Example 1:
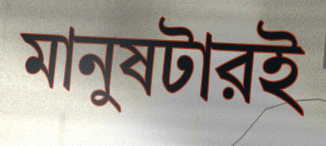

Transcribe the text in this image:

মানুষটারই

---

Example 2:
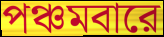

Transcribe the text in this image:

পঞ্চমবারে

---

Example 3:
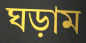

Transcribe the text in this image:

ঘড়াম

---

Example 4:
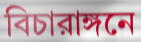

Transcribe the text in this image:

বিচারাঙ্গনে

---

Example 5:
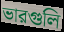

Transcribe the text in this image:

ভারগুলি